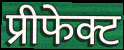
प्रीफेक्ट